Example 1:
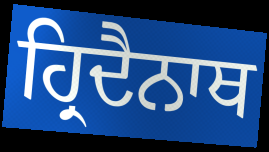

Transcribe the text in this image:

ਹ੍ਰਿਦੈਨਾਥ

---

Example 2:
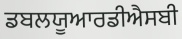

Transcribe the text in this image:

ਡਬਲਯੂਆਰਡੀਐਸਬੀ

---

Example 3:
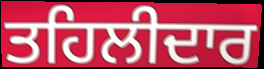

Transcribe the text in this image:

ਤਹਿਲੀਦਾਰ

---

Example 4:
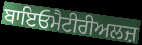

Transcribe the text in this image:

ਬਾਇਓਮੈਟੀਰੀਅਲਜ਼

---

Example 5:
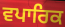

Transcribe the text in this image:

ਵਪਾਰਿਕ